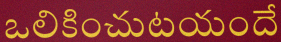
ఒలికించుటయందే